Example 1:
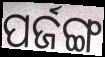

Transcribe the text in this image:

ପର୍ଜଙ୍ଗ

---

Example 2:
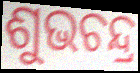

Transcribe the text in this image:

ଶୁଭଚନ୍ଦ୍ର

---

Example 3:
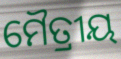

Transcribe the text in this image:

ମୈତ୍ରୀୟ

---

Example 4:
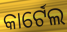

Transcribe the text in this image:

କାର୍ଟେଲ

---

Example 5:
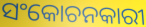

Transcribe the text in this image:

ସଂକୋଚନକାରୀ